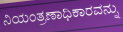
ನಿಯಂತ್ರಣಾಧಿಕಾರವನ್ನು